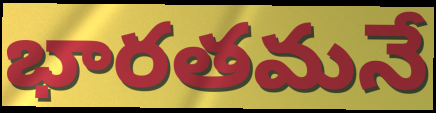
భారతమనే